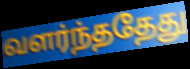
வளர்ந்ததேது